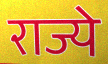
राज्ये